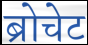
ब्रोचेट